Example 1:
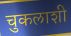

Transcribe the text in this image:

चुकलाशी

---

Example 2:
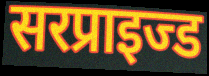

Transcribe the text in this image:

सरप्राइज्ड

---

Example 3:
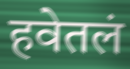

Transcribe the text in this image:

हवेतलं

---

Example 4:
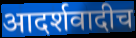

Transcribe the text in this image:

आदर्शवादीच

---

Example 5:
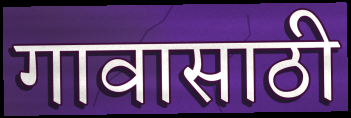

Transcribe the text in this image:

गावासाठी